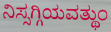
ನಿಸ್ಸಗ್ಗಿಯವತ್ಥುಂ